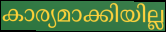
കാര്യമാക്കിയില്ല